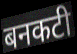
बनकटी